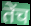
तेंच